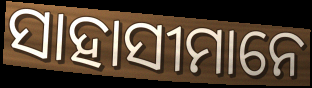
ସାହାସୀମାନେ